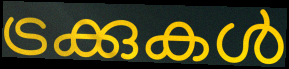
ട്രക്കുകൾ